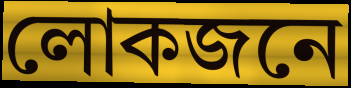
লোকজনে